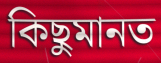
কিছুমানত